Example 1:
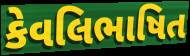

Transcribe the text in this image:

કેવલિભાષિત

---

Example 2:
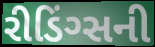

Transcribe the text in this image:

રીડિંગ્સની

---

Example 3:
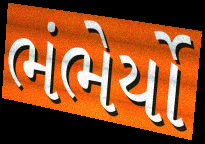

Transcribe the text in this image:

ભંભેર્યો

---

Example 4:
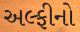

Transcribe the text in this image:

અલ્ફીનો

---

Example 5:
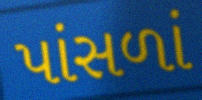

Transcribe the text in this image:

પાંસળાં